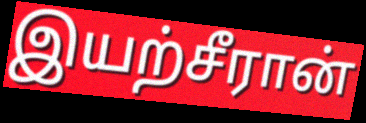
இயற்சீரான்